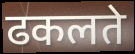
ढकलते